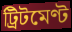
ট্রিটমেণ্ট